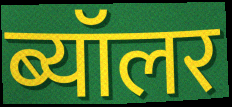
ब्यॉलर